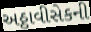
અઠ્ઠાવીસેકની